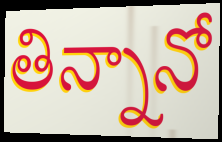
తిన్నానో